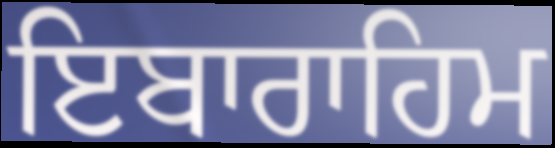
ਇਬਾਰਾਹਿਮ